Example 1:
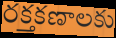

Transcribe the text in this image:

రక్తకణాలకు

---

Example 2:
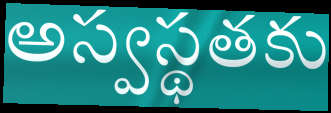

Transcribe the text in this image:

అస్వస్థతకు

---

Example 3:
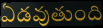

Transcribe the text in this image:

ఏడవుతుంది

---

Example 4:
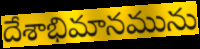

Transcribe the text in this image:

దేశాభిమానమును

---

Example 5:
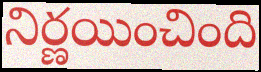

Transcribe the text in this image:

నిర్ణయించింది